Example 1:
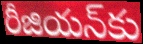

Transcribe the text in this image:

రీజియన్‌కు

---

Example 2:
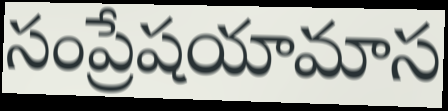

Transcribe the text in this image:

సంప్రేషయామాస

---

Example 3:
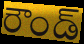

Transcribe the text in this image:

రౌండ్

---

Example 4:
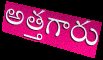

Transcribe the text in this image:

అత్తగారు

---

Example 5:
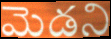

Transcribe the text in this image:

మెడని